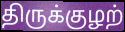
திருக்குழற்